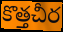
కొత్తచీర